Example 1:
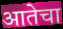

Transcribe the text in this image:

आतेचा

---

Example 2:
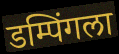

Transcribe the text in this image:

डम्पिंगला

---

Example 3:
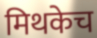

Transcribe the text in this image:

मिथकेच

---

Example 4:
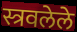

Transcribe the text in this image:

स्त्रवलेले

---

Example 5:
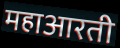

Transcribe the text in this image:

महाआरती